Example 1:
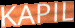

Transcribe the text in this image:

KAPIL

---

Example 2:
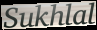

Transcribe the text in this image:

Sukhlal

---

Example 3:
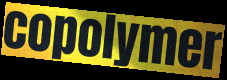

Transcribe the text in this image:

copolymer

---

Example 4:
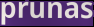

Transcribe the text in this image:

prunas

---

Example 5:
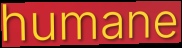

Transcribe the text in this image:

humane